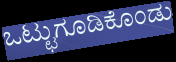
ಒಟ್ಟುಗೂಡಿಕೊಂಡು